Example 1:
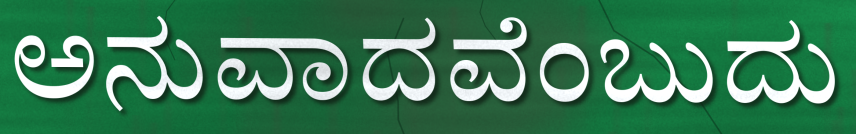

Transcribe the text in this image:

ಅನುವಾದವೆಂಬುದು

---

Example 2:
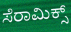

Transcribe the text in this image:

ಸೆರಾಮಿಕ್ಸ್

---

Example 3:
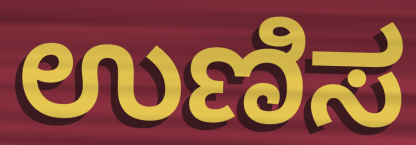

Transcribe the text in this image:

ಉಣಿಸ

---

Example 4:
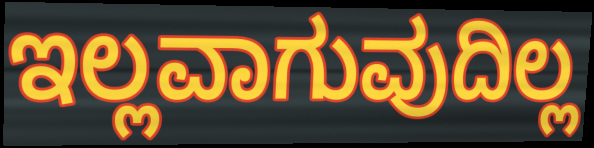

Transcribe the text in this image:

ಇಲ್ಲವಾಗುವುದಿಲ್ಲ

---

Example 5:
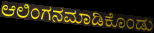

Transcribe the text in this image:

ಆಲಿಂಗನಮಾಡಿಕೊಂಡು